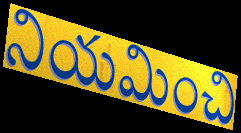
నియమించి